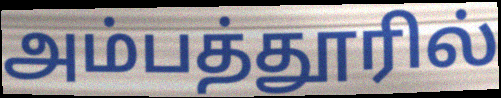
அம்பத்தூரில்